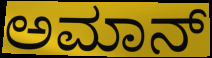
ಅಮಾನ್